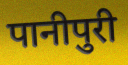
पानीपुरी